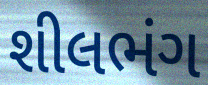
શીલભંગ